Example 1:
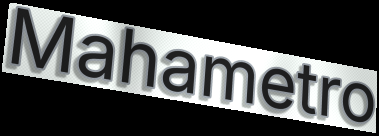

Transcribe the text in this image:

Mahametro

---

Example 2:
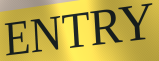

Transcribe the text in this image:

ENTRY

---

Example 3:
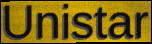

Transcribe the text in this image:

Unistar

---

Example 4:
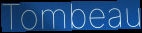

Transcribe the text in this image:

Tombeau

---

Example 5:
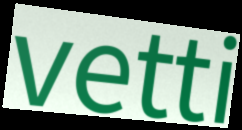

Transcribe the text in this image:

vetti